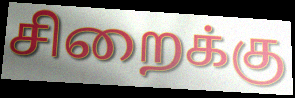
சிறைக்கு